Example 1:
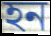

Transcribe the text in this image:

হন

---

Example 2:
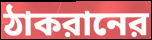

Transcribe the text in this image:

ঠাকরানের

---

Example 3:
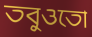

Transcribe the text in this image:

তবুওতো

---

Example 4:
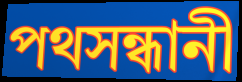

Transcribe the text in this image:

পথসন্ধানী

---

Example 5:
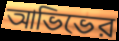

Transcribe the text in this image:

আভিভের